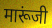
मारूंजी